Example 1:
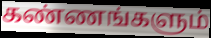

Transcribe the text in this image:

கண்ணங்களும்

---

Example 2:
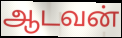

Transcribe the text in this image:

ஆடவன்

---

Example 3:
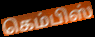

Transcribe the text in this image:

கெம்பிஸ்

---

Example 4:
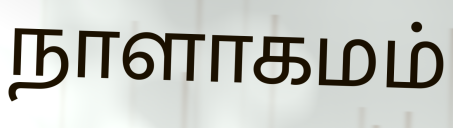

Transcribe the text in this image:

நாளாகமம்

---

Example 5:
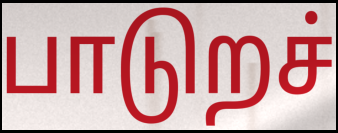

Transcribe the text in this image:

பாடுறச்